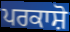
ਪਰਕਾਸ਼ੋ